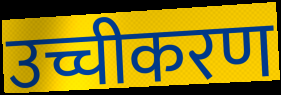
उच्चीकरण